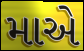
માએ